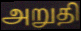
அறுதி